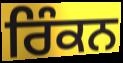
ਰਿੰਕਨ